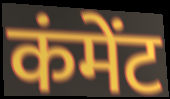
कंमेंट